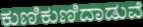
ಕುಣಿಕುಣಿದಾಡುವೆ